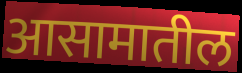
आसामातील